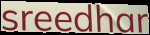
sreedhar